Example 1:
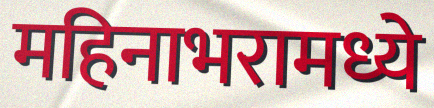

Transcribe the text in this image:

महिनाभरामध्ये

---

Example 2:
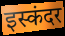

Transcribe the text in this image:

इस्कंदर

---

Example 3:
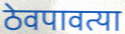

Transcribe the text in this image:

ठेवपावत्या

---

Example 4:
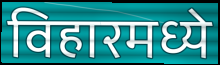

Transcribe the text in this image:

विहारमध्ये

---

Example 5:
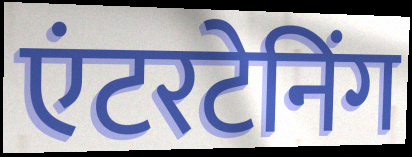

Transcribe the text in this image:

एंटरटेनिंग